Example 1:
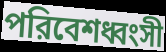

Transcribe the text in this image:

পরিবেশধ্বংসী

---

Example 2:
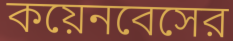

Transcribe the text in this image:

কয়েনবেসের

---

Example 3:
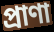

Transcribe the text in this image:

প্রাণা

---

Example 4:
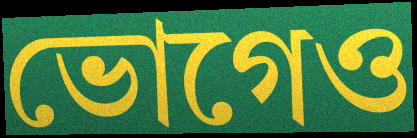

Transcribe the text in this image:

ভোগেও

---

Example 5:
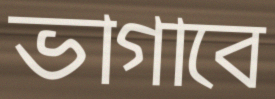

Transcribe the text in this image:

ভাগাবে